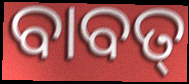
ବାବତ୍